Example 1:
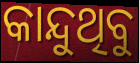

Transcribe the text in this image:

କାନ୍ଦୁଥିବୁ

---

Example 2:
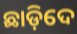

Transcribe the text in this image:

ଛାଡ଼ିଦେ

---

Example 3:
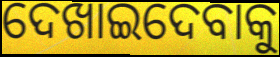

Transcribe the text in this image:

ଦେଖାଇଦେବାକୁ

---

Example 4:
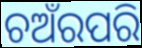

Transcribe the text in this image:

ଚଅଁରପରି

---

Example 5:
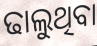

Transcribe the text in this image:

ଢାଲୁଥିବା